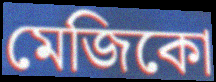
মেজিকো